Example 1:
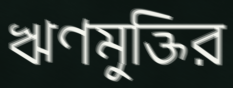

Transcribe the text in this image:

ঋণমুক্তির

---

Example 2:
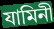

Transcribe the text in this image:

যামিনী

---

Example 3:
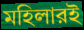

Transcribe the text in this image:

মহিলারই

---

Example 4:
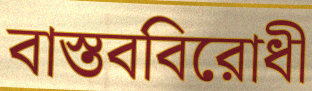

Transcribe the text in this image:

বাস্তববিরোধী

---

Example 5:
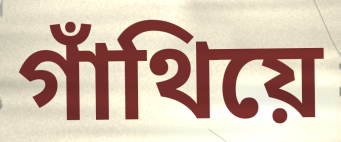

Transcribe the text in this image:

গাঁথিয়ে